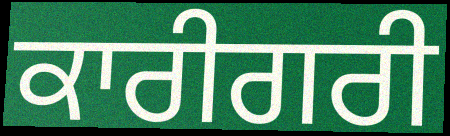
ਕਾਰੀਗਰੀ